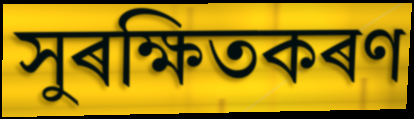
সুৰক্ষিতকৰণ